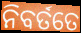
ନିବର୍ତତେ